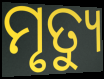
ମୃତ୍ୟୁ